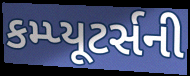
કમ્પ્યૂટર્સની